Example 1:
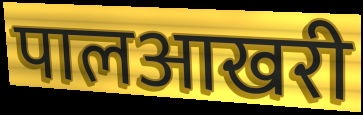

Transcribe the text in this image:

पालआखरी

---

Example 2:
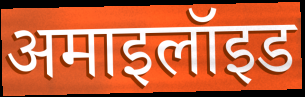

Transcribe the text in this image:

अमाइलॉइड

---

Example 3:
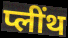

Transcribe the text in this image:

प्लींथ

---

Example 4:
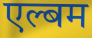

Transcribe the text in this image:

एल्बम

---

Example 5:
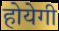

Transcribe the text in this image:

होयेगी